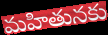
మహితునకు